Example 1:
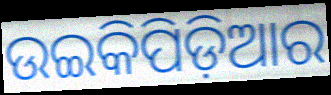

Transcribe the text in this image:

ଉଇକିପିଡ଼ିଆର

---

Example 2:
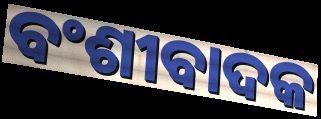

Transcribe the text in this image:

ବଂଶୀବାଦକ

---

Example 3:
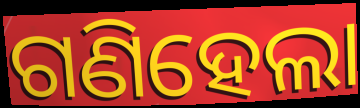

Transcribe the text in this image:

ଗଣିହେଲା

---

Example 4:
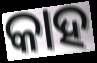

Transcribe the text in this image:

କାହ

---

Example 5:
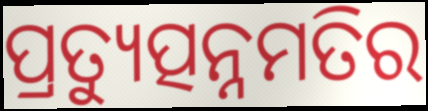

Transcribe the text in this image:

ପ୍ରତ୍ୟୁତ୍ପନ୍ନମତିର